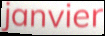
janvier